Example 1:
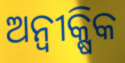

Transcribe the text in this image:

ଅନ୍ୱୀକ୍ଷିକ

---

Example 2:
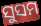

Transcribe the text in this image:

ସୁସମ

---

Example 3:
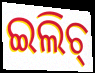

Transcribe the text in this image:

ଇଲିଚ୍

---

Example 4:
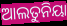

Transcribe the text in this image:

ଆଲତୁନିୟା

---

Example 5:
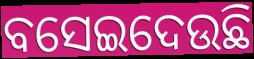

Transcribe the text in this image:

ବସେଇଦେଉଛି